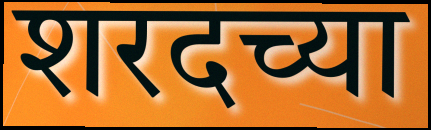
शरदच्या